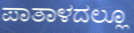
ಪಾತಾಳದಲ್ಲೂ